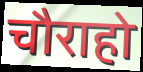
चौराहो